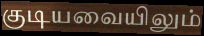
குடியவையிலும்